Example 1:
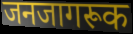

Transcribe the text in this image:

जनजागरूक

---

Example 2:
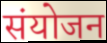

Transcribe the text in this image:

संयोजन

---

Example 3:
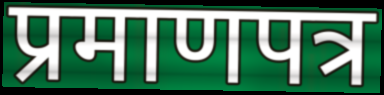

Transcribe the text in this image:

प्रमाणपत्र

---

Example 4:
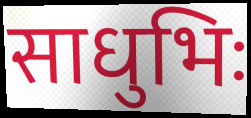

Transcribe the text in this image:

साधुभिः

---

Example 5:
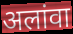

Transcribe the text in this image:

अलांवा